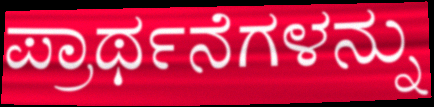
ಪ್ರಾರ್ಥನೆಗಳನ್ನು